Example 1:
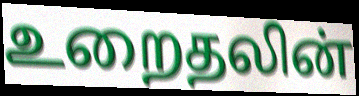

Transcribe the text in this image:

உறைதலின்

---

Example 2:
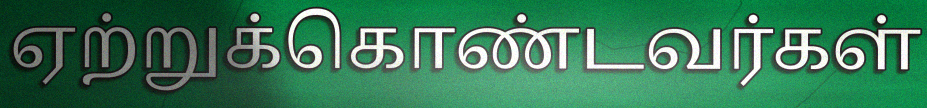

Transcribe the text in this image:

ஏற்றுக்கொண்டவர்கள்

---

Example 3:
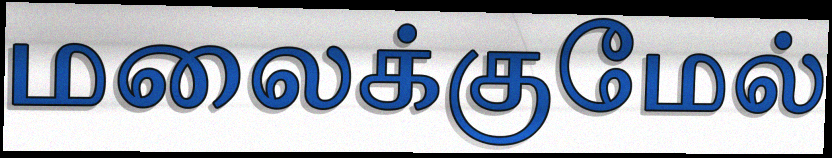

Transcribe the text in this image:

மலைக்குமேல்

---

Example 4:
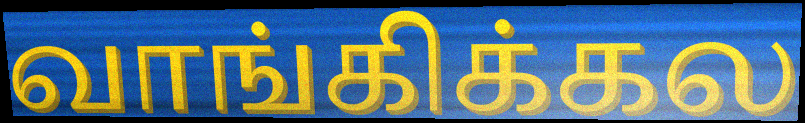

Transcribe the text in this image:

வாங்கிக்கல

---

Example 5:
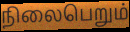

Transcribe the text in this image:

நிலைபெறும்